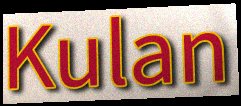
Kulan